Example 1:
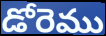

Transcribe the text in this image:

డోరెము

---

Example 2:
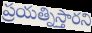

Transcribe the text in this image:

ప్రయత్నిస్తారని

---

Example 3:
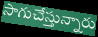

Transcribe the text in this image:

సాగుచేస్తున్నారు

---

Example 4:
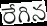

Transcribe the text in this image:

రేగిన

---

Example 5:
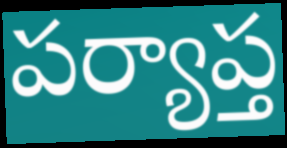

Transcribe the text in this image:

పర్యాప్త